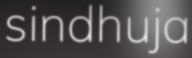
sindhuja